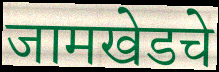
जामखेडचे